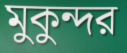
মুকুন্দর